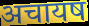
अचायष